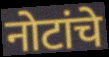
नोटांचे